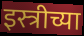
इस्त्रीच्या